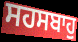
ਸਹਸਬਾਹੁ